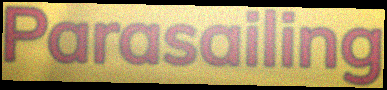
Parasailing